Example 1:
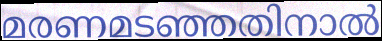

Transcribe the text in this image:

മരണമടഞ്ഞതിനാൽ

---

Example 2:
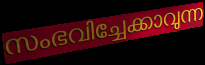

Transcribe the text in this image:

സംഭവിച്ചേക്കാവുന്ന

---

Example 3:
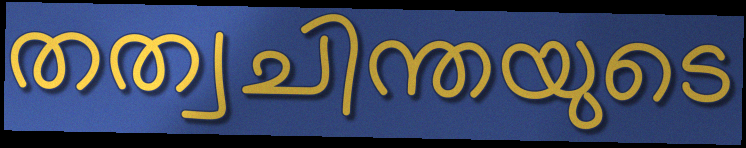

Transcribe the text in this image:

തത്വചിന്തയുടെ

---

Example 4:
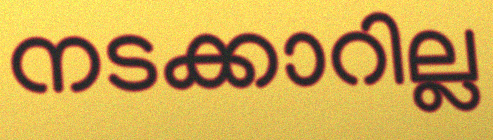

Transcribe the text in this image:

നടക്കാറില്ല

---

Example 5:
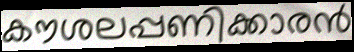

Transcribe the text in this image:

കൗശലപ്പണിക്കാരൻ